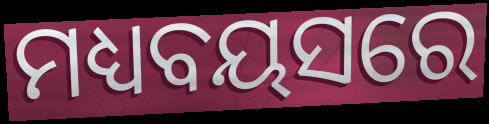
ମଧ୍ୟବୟସରେ